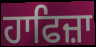
ਹਾਫਿਜ਼ਾ